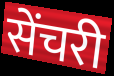
सेंचरी